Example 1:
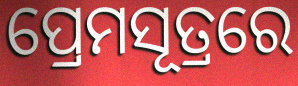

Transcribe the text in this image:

ପ୍ରେମସୂତ୍ରରେ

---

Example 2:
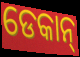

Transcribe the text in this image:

ଡେକାନ୍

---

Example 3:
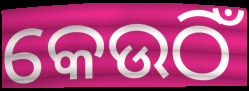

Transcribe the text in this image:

କେଉଠିଁ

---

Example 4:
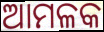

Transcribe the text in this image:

ଆମଳକ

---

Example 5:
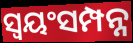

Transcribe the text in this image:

ସ୍ବୟଂସମ୍ପନ୍ନ